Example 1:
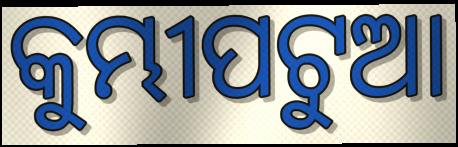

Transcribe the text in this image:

କୁମ୍ଭୀପଟୁଆ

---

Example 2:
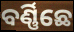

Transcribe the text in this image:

ବର୍ଣ୍ଣିଛେ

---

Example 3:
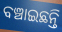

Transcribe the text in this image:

ବଞ୍ଚାଇଛନ୍ତି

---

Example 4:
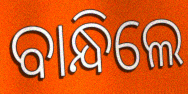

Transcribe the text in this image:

ବାନ୍ଧିଲେ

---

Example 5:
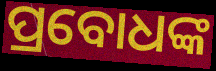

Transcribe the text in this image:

ପ୍ରବୋଧଙ୍କ